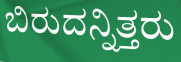
ಬಿರುದನ್ನಿತ್ತರು